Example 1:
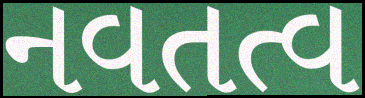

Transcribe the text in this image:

નવતત્વ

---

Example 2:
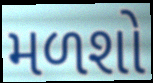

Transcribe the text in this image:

મળશો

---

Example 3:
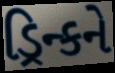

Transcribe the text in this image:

ડ્રિન્કને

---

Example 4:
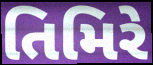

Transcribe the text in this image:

તિમિરે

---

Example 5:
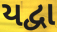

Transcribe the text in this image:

યદ્વા